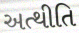
અત્થીતિ